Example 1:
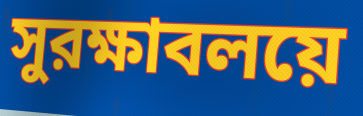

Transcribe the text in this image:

সুরক্ষাবলয়ে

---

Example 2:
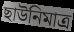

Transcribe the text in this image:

ছাউনিমাত্র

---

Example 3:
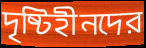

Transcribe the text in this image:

দৃষ্টিহীনদের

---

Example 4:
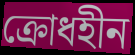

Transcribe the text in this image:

ক্রোধহীন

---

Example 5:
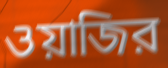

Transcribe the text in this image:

ওয়াজির